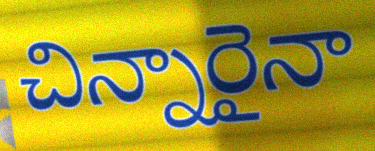
చిన్నారైనా